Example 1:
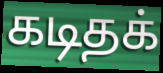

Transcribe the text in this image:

கடிதக்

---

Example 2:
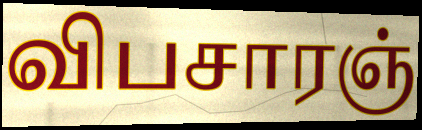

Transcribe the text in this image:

விபசாரஞ்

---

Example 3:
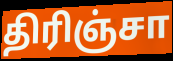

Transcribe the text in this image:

திரிஞ்சா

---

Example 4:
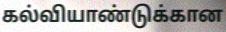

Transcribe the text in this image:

கல்வியாண்டுக்கான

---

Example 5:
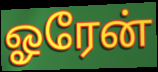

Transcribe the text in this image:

ஓரேன்